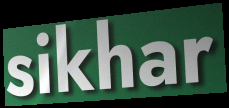
sikhar